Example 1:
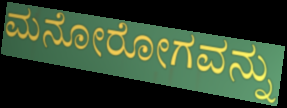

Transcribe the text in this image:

ಮನೋರೋಗವನ್ನು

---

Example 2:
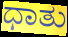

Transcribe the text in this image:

ಧಾತು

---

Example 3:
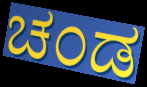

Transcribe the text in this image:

ಚಂಡ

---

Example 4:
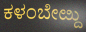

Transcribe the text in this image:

ಕಳಂಬೇೞ್ದು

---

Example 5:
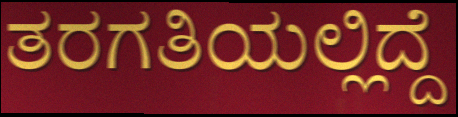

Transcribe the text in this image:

ತರಗತಿಯಲ್ಲಿದ್ದೆ